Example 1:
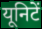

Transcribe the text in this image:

यूनिटें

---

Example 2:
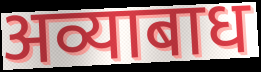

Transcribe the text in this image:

अव्याबाध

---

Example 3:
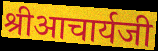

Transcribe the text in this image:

श्रीआचार्यजी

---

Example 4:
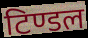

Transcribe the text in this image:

टिण्डल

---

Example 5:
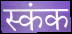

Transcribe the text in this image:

स्कंक